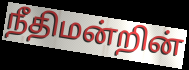
நீதிமன்றின்